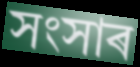
সংসাৰ